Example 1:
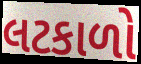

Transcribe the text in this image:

લટકાળો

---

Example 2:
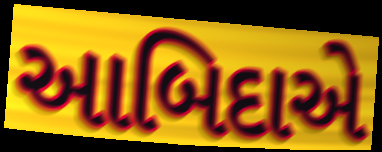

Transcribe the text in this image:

આબિદાએ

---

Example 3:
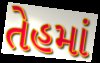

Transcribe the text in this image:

તેહમાં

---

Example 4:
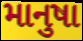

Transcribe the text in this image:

માનુષા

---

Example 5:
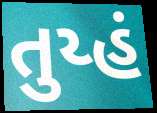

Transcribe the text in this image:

તુય્હં